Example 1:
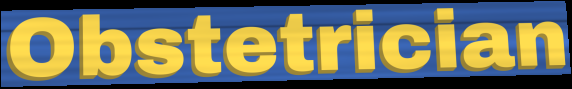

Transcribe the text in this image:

Obstetrician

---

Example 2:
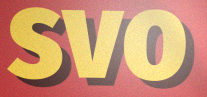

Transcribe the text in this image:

svo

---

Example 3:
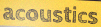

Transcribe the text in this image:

acoustics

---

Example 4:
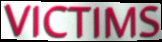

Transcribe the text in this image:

VICTIMS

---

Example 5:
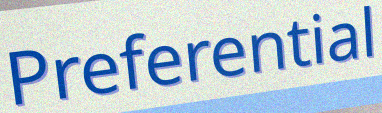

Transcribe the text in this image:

Preferential